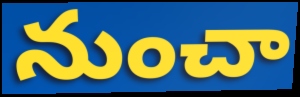
నుంచా